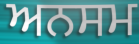
ਅਨਸਮ